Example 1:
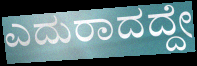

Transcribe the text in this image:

ಎದುರಾದದ್ದೇ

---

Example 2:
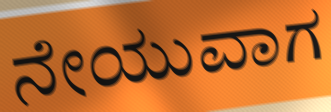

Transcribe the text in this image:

ನೇಯುವಾಗ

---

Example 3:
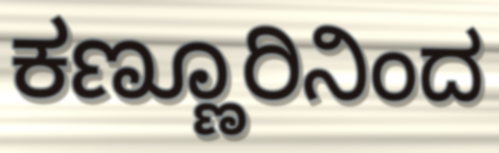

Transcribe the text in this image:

ಕಣ್ಣೂರಿನಿಂದ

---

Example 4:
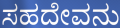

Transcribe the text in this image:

ಸಹದೇವನು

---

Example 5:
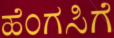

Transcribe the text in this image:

ಹೆಂಗಸಿಗೆ